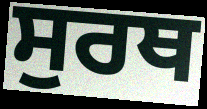
ਸੁਰਥ